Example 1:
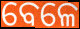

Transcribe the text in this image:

ବେଳେ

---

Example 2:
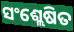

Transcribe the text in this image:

ସଂଶ୍ଲେଷିତ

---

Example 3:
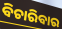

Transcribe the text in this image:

ବିଚାରିବାର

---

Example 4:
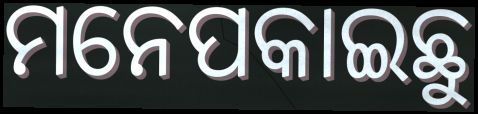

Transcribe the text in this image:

ମନେପକାଇଛୁ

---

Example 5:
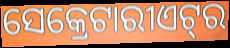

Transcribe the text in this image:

ସେକ୍ରେଟାରୀଏଟ୍‍ର